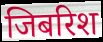
जिबरिश